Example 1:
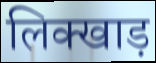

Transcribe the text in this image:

लिक्खाड़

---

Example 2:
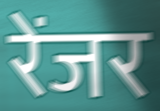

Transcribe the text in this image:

रेंजर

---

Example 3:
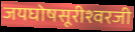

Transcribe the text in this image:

जयघोषसूरीश्वरजी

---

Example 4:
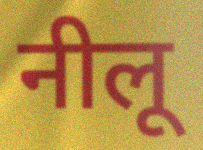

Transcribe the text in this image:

नीलू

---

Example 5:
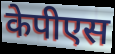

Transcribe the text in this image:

केपीएस